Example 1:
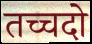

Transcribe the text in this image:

तच्चदो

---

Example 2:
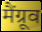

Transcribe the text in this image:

मैंग्रूव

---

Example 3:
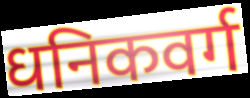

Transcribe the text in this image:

धनिकवर्ग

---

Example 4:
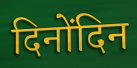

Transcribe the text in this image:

दिनोंदिन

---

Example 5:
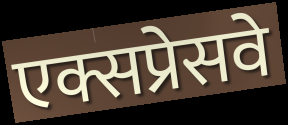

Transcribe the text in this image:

एक्सप्रेसवे